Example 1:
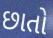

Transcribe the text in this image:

છાતો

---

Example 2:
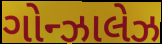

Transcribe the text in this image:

ગોન્ઝાલેઝ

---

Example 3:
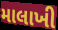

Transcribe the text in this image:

માલાખી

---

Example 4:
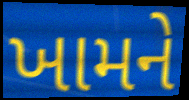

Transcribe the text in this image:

ખામને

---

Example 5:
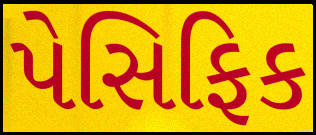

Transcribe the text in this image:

પેસિફિક